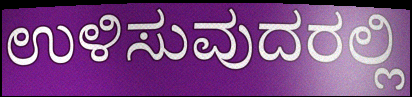
ಉಳಿಸುವುದರಲ್ಲಿ